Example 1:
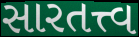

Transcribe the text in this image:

સારતત્ત્વ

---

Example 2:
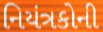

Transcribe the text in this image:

નિયંત્રકોની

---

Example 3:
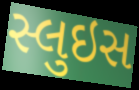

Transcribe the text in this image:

સ્લુઇસ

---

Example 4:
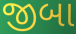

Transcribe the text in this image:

જીબા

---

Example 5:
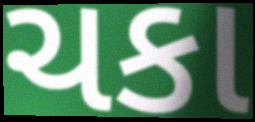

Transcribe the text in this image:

ચકા